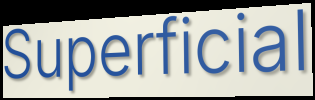
Superficial